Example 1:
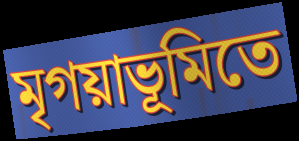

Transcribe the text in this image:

মৃগয়াভূমিতে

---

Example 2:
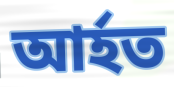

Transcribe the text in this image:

আর্হত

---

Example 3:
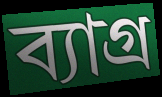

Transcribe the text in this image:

ব্যাগ্র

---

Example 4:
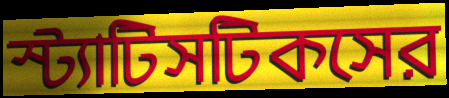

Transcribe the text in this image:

স্ট্যাটিসটিকসের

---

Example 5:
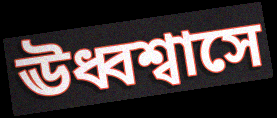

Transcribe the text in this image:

ঊধ্বশ্বাসে